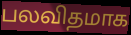
பலவிதமாக